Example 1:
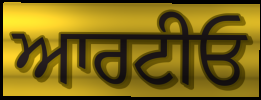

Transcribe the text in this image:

ਆਰਟੀਓ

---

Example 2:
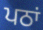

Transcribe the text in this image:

ਪਠਾਂ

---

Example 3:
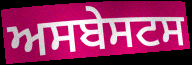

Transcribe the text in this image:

ਅਸਬੇਸਟਸ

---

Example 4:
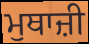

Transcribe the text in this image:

ਮੁਥਾਜ਼ੀ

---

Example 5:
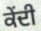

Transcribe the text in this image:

ਕੇਂਦੀ